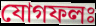
যোগফলঃ